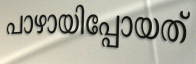
പാഴായിപ്പോയത്